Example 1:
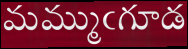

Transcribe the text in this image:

మమ్ముఁగూడ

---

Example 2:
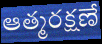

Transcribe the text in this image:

ఆత్మరక్షణే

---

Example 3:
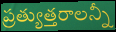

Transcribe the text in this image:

ప్రత్యుత్తరాలన్నీ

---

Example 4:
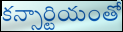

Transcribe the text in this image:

కన్సార్టియంతో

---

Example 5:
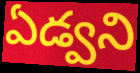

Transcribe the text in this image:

ఏడ్వని